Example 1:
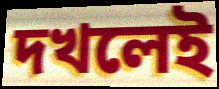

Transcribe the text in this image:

দখলেই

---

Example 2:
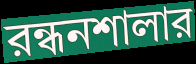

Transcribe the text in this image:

রন্ধনশালার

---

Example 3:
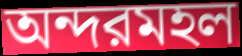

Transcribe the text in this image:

অন্দরমহল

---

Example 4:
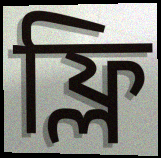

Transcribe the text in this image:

ফ্লি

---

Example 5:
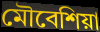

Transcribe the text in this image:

মৌবেশিয়া